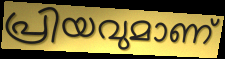
പ്രിയവുമാണ്